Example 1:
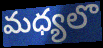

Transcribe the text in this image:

మధ్యలొ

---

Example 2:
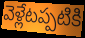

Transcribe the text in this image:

వెళ్లేటప్పటికి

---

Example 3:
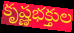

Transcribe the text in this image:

కృష్ణభక్తుల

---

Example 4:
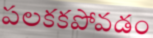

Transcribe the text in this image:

పలకకపోవడం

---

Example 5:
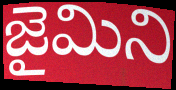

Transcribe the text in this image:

జైమిని